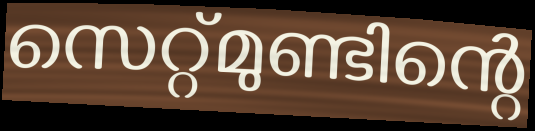
സെറ്റ്മുണ്ടിന്റെ